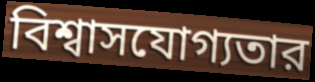
বিশ্বাসযোগ্যতার